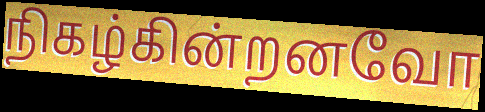
நிகழ்கின்றனவோ